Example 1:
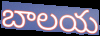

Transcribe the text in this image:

బాలయ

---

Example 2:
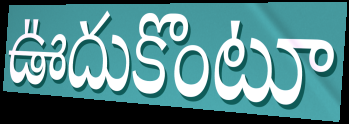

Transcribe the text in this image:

ఊదుకొంటూ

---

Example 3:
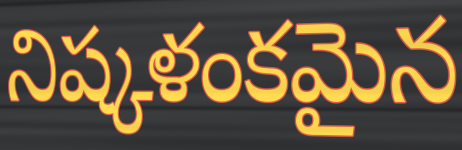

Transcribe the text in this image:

నిష్కళంకమైన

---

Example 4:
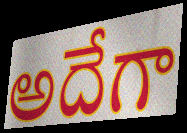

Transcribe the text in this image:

అదేగా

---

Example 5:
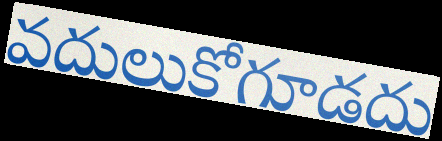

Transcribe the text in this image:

వదులుకోగూడదు